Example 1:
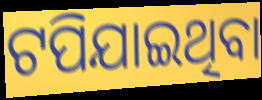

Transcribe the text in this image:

ଟପିଯାଇଥିବା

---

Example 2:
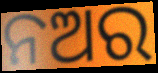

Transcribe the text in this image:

ନଅର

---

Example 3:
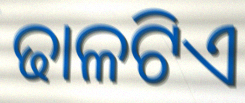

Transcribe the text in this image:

ଢାଳଟିଏ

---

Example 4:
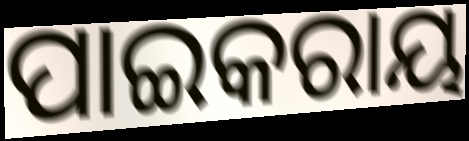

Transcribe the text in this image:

ପାଇକରାୟ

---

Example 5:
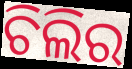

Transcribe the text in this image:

ଚିଲିର